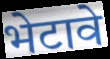
भेटावे